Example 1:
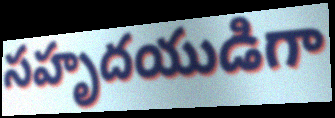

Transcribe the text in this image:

సహృదయుడిగా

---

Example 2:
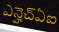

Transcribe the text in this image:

ఎన్హెచ్ఏఐ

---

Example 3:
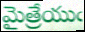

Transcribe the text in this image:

మైత్రేయుఁ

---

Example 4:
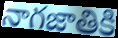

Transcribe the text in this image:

నాగజాతికి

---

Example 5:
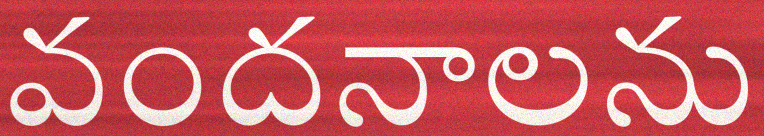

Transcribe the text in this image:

వందనాలను